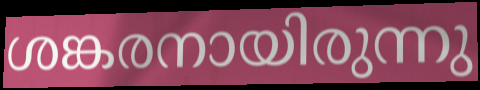
ശങ്കരനായിരുന്നു